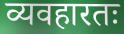
व्यवहारतः